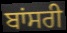
ਬਾਂਸਰੀ